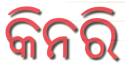
କିନରି